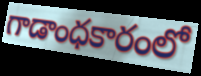
గాడాంధకారంలో